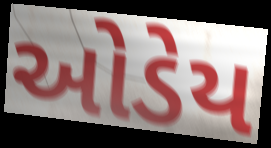
ઓડેય